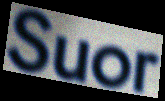
Suor